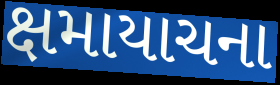
ક્ષમાયાચના